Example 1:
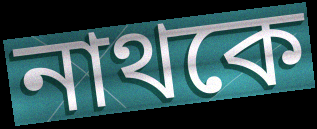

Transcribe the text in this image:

নাথকে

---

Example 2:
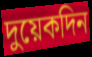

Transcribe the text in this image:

দুয়েকদিন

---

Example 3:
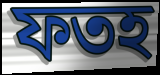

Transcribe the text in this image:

ফতহ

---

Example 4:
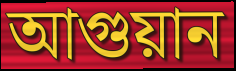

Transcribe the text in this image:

আগুয়ান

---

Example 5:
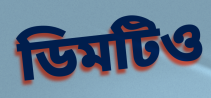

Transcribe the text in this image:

ডিমটিও